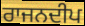
ਰਾਜਨਦੀਪ